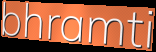
bhramti